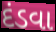
દંડવા